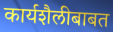
कार्यशैलीबाबत